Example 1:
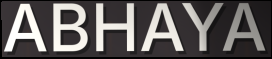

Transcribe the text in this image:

ABHAYA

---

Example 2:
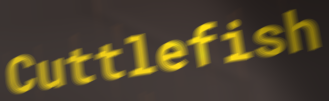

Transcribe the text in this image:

Cuttlefish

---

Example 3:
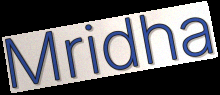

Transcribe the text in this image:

Mridha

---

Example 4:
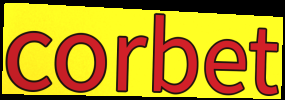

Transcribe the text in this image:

corbet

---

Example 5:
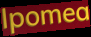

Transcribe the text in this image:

Ipomea